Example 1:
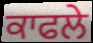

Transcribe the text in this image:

ਕਾਫਲੇ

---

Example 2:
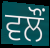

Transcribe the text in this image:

ਵਲੌੰ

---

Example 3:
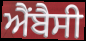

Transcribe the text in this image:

ਐਂਬੈਸੀ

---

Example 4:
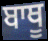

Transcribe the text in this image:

ਬਾਥੂ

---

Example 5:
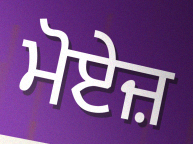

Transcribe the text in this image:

ਮੋਏਜ਼